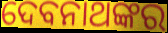
ଦେବନାଥଙ୍କର